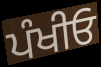
ਪੰਖੀਓ